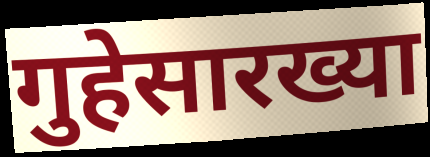
गुहेसारख्या